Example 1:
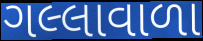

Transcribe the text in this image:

ગલ્લાવાળા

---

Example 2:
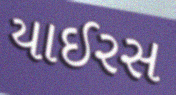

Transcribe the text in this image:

યાઈરસ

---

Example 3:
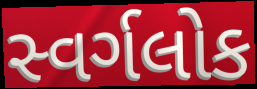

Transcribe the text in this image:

સ્વર્ગલોક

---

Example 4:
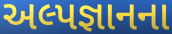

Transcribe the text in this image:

અલ્પજ્ઞાનના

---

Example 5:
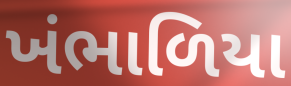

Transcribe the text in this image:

ખંભાળિયા